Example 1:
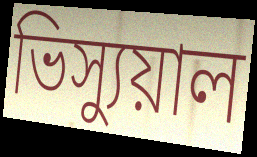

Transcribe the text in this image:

ভিস্যুয়াল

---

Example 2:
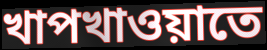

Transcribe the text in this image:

খাপখাওয়াতে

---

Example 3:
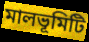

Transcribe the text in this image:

মালভূমিটি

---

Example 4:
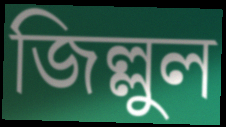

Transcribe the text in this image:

জিল্লুল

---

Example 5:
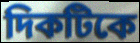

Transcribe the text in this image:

দিকটিকে